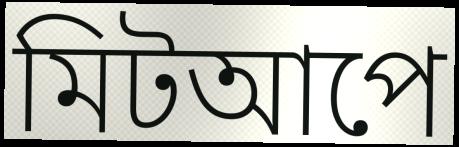
মিটআপে